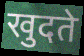
खुदते